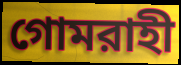
গোমরাহী